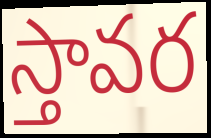
స్తావర